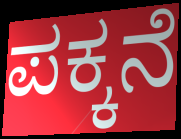
ಪಕ್ಕನೆ